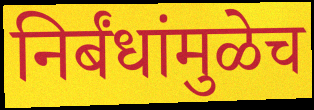
निर्बंधांमुळेच